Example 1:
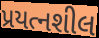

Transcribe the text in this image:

પ્રયત્નશીલ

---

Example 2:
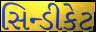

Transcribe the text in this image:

સિન્ડીકેટ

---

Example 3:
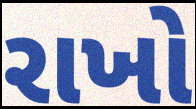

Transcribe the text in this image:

રાખો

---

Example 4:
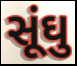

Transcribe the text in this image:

સૂંઘુ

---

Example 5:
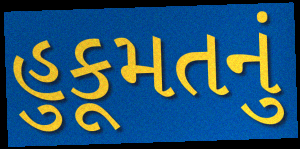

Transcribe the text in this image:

હુકૂમતનું